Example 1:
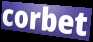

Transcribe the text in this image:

corbet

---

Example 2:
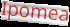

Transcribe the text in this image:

Ipomea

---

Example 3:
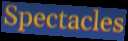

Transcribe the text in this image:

Spectacles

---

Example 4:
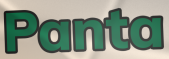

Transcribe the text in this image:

Panta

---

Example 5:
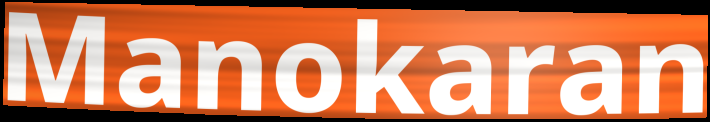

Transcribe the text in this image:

Manokaran